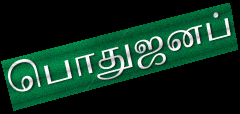
பொதுஜனப்